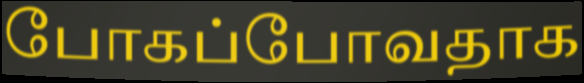
போகப்போவதாக